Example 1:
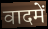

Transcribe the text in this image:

वादमें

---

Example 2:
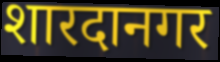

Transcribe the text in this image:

शारदानगर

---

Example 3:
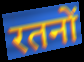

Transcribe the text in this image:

रतनों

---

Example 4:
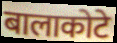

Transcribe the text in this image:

बालाकोटे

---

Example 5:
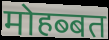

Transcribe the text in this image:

मोहब्‍बत